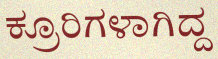
ಕ್ರೂರಿಗಳಾಗಿದ್ದ